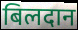
बिलदान